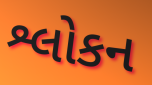
શ્લોકન